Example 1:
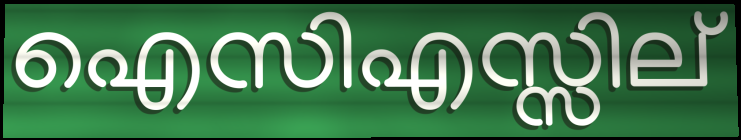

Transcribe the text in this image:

ഐസിഎസ്സില്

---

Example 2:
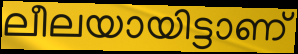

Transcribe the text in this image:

ലീലയായിട്ടാണ്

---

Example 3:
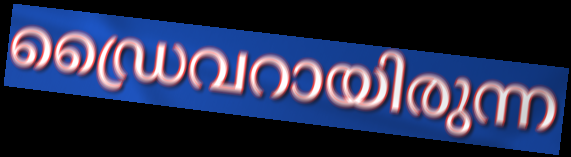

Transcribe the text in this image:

ഡ്രൈവറായിരുന്ന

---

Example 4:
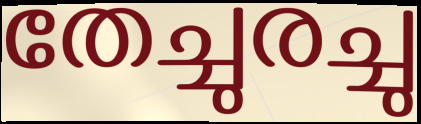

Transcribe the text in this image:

തേച്ചുരച്ചു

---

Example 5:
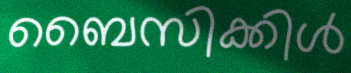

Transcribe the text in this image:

ബൈസിക്കിൾ